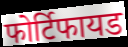
फोर्टिफायड